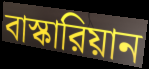
বাস্কারিয়ান